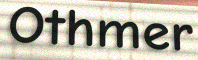
Othmer